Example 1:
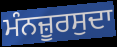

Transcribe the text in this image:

ਮੰਨਜ਼ੂਰਸੁਦਾ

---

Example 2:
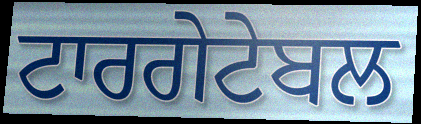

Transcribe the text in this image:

ਟਾਰਗੇਟੇਬਲ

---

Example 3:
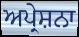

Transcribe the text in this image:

ਅਪ੍ਰੇਸ਼ਨਾ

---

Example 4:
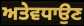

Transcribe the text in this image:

ਅਤੇਵਧਾਉਣ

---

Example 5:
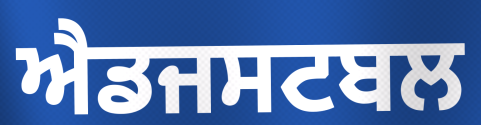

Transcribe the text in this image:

ਐਡਜਸਟਬਲ